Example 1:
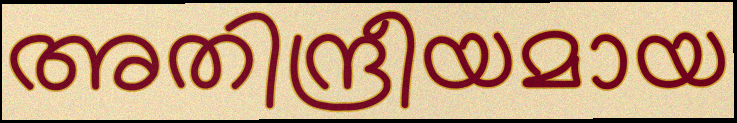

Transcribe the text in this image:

അതിന്ദ്രീയമായ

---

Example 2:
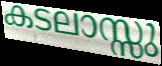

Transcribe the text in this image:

കടലാസ്സു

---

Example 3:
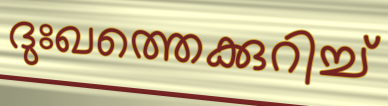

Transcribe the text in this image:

ദുഃഖത്തെക്കുറിച്ച്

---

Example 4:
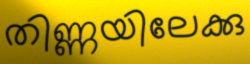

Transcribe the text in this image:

തിണ്ണയിലേക്കു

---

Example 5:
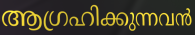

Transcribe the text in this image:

ആഗ്രഹിക്കുന്നവൻ